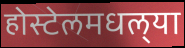
होस्टेलमधल्या